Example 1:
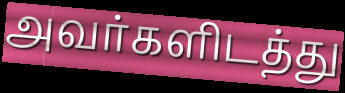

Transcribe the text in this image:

அவர்களிடத்து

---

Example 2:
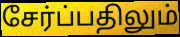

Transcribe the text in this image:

சேர்ப்பதிலும்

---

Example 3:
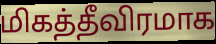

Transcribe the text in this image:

மிகத்தீவிரமாக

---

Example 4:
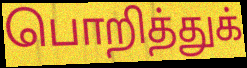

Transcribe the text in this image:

பொறித்துக்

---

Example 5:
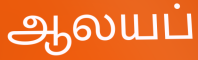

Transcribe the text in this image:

ஆலயப்